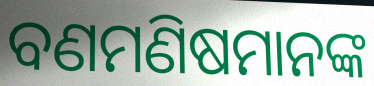
ବଣମଣିଷମାନଙ୍କ